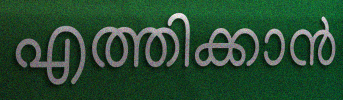
എത്തിക്കാൻ